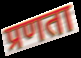
प्रणता